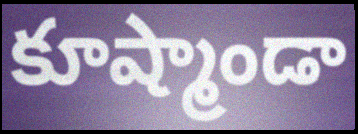
కూష్మాండా